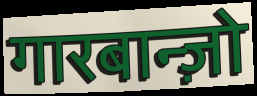
गारबान्ज़ो